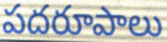
పదరూపాలు